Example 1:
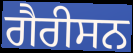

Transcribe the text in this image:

ਗੈਰੀਸਨ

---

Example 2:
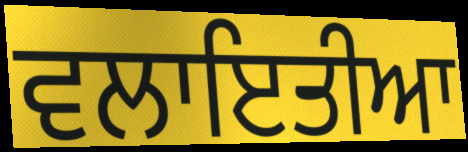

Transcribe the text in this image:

ਵਲਾਇਤੀਆ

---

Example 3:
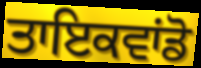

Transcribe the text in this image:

ਤਾਇਕਵਾਂਡੋ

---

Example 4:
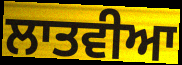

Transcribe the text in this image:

ਲਾਤਵੀਆ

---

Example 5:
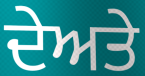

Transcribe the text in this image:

ਦੇਅਤੇ